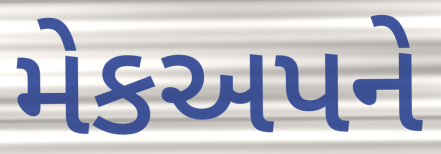
મેકઅપને